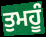
ਤੁਮਹੂੰ